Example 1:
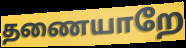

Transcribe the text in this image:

தணையாறே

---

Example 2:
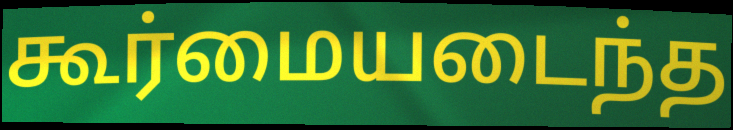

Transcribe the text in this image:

கூர்மையடைந்த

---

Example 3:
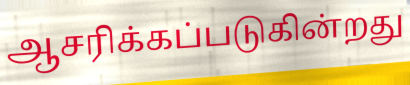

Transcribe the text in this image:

ஆசரிக்கப்படுகின்றது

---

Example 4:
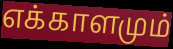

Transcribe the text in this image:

எக்காளமும்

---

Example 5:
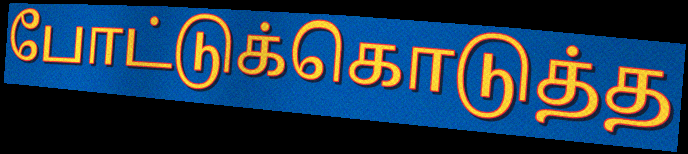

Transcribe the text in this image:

போட்டுக்கொடுத்த